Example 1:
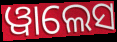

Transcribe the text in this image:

ୱାଲେସ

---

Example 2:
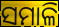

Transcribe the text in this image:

ସମାଳି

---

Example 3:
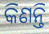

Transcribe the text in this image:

କିଣନ୍ତି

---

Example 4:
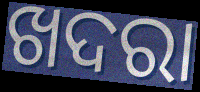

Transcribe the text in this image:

ଖଦରା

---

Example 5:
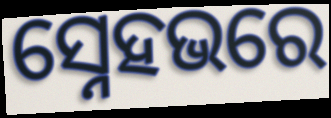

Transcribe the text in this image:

ସ୍ନେହଭରେ